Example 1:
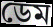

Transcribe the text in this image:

ডেম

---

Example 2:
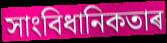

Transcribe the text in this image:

সাংবিধানিকতাৰ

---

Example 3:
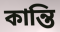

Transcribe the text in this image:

কান্তি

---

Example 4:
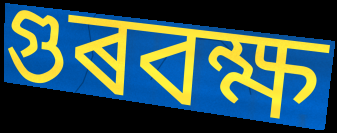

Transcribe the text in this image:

গুৰবক্ষ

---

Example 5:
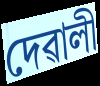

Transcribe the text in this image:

দেৱালী